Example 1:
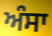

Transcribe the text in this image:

ਅੰਸਾ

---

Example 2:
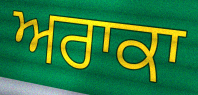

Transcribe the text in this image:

ਅਰਾਕਾ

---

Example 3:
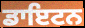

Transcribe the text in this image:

ਡਾਇਟਨ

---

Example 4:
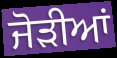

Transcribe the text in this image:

ਜੋਡ਼ੀਆਂ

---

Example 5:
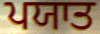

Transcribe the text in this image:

ਪਯਾਤ